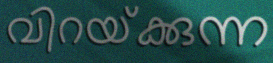
വിറയ്‌ക്കുന്ന